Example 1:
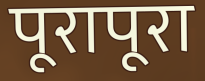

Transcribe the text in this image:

पूरापूरा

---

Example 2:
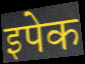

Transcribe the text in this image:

इपेक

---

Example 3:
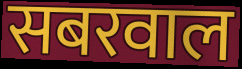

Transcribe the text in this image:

सबरवाल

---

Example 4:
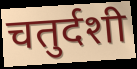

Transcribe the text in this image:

चतुर्दशी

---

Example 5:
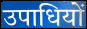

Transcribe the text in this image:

उपाधियों